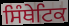
ਸਿੰਥੇਟਿਕ